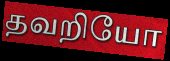
தவறியோ